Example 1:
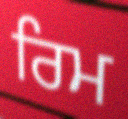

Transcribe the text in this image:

ਰਿਮ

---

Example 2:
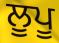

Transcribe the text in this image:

ਲੂਪੂ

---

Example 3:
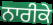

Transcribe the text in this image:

ਨਾਰੀਕੇ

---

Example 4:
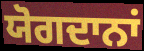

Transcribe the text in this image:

ਯੋਗਦਾਨਾਂ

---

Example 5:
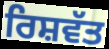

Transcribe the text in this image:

ਰਿਸ਼ਵੱਤ